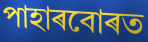
পাহাৰবোৰত